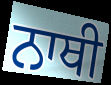
ਨਾਥੀ